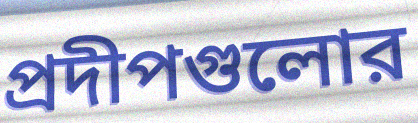
প্রদীপগুলোর